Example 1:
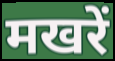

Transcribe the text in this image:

मखरें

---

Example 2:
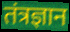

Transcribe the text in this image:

तंत्रज्ञान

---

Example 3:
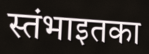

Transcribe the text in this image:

स्तंभाइतका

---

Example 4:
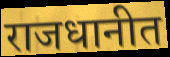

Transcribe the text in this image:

राजधानीत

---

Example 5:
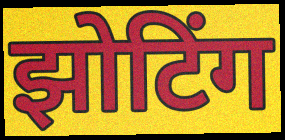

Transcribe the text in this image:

झोटिंग